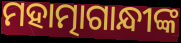
ମହାତ୍ମାଗାନ୍ଧୀଙ୍କ